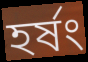
হর্ষং